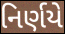
નિર્ણયે